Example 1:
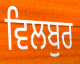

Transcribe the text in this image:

ਵਿਲਬੁਰ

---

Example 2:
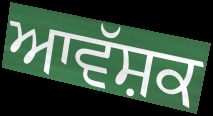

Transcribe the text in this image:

ਆਵੱਸ਼ਕ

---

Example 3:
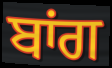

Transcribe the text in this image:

ਬਾਂਗ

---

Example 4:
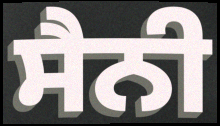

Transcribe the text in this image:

ਸੈਨੀ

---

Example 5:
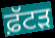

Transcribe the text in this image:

ਫ਼ੱਟੜ